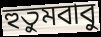
হুতুমবাবু